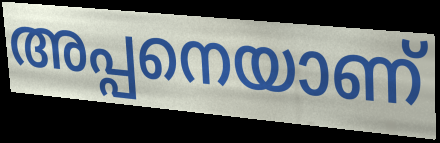
അപ്പനെയാണ്